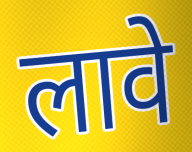
लावे